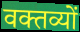
वक्तव्यों